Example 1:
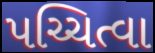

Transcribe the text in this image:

પચ્ચિત્વા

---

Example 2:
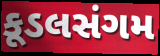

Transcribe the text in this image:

કૂડલસંગમ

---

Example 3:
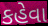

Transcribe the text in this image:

કહેવા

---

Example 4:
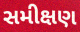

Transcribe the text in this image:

સમીક્ષણ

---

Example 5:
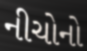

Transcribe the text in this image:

નીચોનો